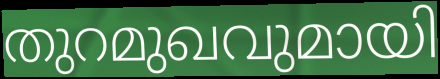
തുറമുഖവുമായി